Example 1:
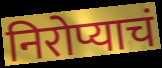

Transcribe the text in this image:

निरोप्याचं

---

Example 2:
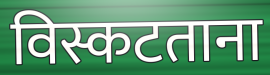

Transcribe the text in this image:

विस्कटताना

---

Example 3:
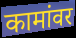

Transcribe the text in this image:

कामांवर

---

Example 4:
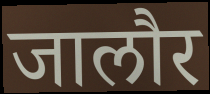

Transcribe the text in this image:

जालौर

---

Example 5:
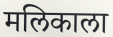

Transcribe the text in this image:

मलिकाला